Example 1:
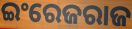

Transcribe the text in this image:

ଇଂରେଜରାଜ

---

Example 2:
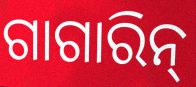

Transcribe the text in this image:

ଗାଗାରିନ୍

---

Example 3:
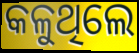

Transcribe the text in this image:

କଳୁଥିଲେ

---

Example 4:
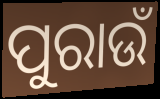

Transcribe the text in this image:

ପୁରାଉଁ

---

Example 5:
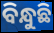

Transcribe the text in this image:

ବିନ୍ଧୁଛି